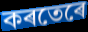
কৰতেৰে